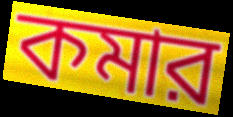
কমার